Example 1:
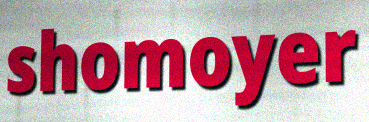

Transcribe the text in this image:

shomoyer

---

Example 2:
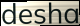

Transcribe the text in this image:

desha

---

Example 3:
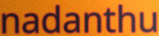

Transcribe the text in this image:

nadanthu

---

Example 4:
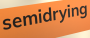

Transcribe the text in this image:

semidrying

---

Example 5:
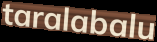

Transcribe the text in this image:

taralabalu